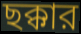
ছক্কার